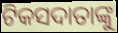
ଟିକସଦାତାଙ୍କୁ